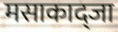
मसाकाद्जा